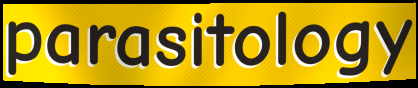
parasitology